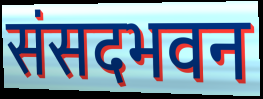
संसदभवन